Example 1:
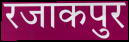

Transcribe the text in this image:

रजाकपुर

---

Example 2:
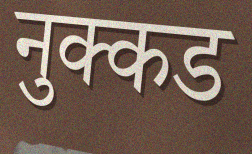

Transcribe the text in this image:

नुक्कड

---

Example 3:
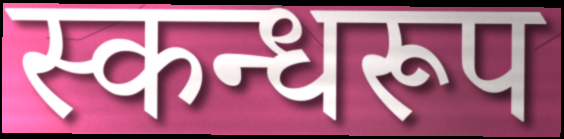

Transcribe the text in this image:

स्कन्धरूप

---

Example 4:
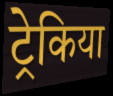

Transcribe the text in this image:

ट्रेकिया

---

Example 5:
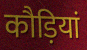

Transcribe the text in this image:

कौड़ियां